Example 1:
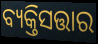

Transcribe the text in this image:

ବ୍ୟକ୍ତିସତ୍ତାର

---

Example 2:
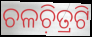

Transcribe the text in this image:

ଚଳଚ଼ିତ୍ରଟି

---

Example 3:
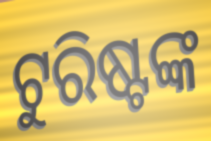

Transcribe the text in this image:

ଟୁରିଷ୍ଟଙ୍କ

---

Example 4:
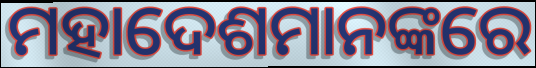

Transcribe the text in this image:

ମହାଦେଶମାନଙ୍କରେ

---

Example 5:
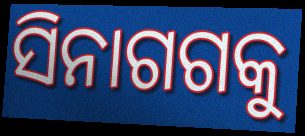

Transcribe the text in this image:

ସିନାଗଗକୁ